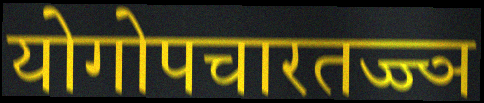
योगोपचारतज्ज्ञ